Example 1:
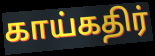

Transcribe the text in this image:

காய்கதிர்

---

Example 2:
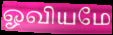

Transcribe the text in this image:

ஓவியமே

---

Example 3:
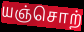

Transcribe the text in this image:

யஞ்சொற்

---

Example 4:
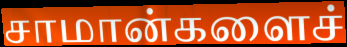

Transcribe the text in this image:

சாமான்களைச்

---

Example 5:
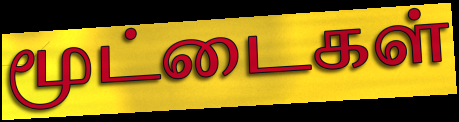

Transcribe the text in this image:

மூட்டைகள்